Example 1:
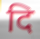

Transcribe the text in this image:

दि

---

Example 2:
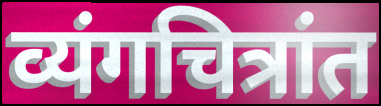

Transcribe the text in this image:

व्यंगचित्रांत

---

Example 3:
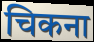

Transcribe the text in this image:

चिकना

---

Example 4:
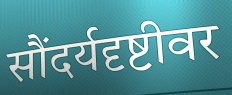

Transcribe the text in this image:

सौंदर्यदृष्टीवर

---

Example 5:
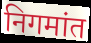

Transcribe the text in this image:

निगमांत